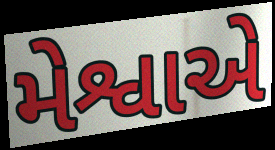
મેશ્વાએ